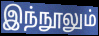
இந்நூலும்